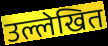
उल्‍लेखित